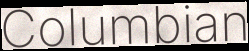
Columbian